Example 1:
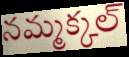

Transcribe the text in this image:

నమ్మక్కల్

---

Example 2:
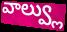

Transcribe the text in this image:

వాల్వ్లు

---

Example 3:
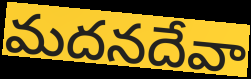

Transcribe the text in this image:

మదనదేవా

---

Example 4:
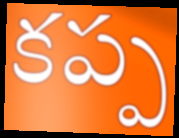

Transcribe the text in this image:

కప్ప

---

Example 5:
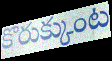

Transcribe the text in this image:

కొరుక్కుంట